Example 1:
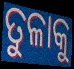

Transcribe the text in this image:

ତୁଳାକୁ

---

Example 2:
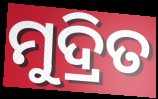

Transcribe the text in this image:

ମୁଦ୍ରିତ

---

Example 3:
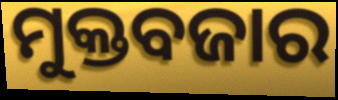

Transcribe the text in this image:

ମୁକ୍ତବଜାର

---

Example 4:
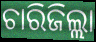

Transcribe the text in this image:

ଚାରିଜିଲ୍ଲା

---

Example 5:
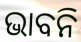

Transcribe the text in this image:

ଭାବନି